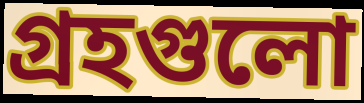
গ্রহগুলো